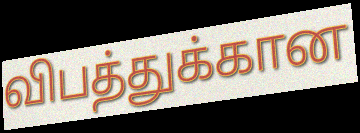
விபத்துக்கான